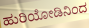
ಹುರಿಯೋಡಿನಿಂದ